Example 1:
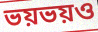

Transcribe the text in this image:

ভয়ভয়ও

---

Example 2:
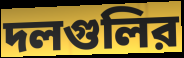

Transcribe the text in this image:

দলগুলির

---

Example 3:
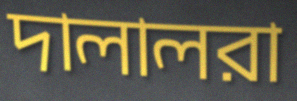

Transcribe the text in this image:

দালালরা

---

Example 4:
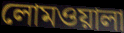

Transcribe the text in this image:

লোমওয়ালা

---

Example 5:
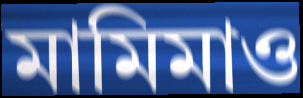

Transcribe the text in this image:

মামিমাও